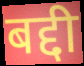
बद्दी